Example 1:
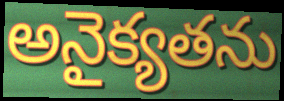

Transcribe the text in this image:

అనైక్యతను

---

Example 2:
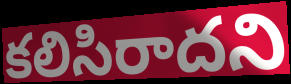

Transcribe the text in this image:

కలిసిరాదని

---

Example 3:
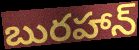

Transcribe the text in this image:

బురహాన్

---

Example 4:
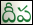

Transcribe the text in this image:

దీప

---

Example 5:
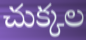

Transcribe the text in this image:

చుక్కల